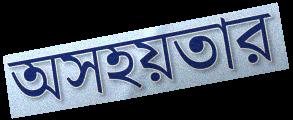
অসহয়তার